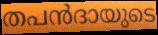
തപൻദായുടെ